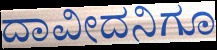
ದಾವೀದನಿಗೂ